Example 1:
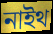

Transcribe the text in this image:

নাইথ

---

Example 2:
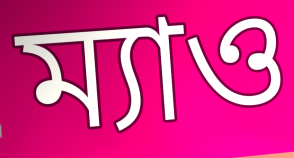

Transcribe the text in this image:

ম্যাও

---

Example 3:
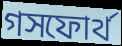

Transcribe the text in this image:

গসফোর্থ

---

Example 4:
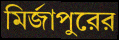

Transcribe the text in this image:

মির্জাপুরের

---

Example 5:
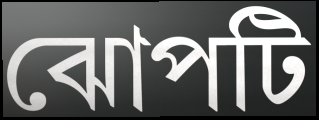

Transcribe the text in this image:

ঝোপটি